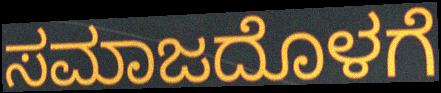
ಸಮಾಜದೊಳಗೆ